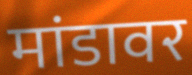
मांडावर